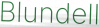
Blundell